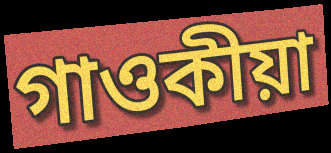
গাওকীয়া